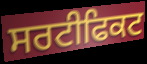
ਸਰਟੀਫਿਕਟ